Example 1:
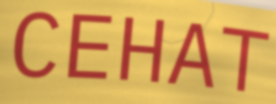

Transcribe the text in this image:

CEHAT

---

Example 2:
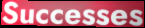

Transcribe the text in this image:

Successes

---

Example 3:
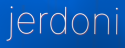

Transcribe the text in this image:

jerdoni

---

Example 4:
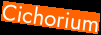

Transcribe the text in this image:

Cichorium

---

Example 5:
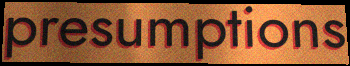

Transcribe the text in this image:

presumptions